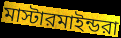
মাস্টারমাইন্ডরা